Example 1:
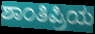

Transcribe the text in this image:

ಶಾಂತಿಪ್ರಿಯ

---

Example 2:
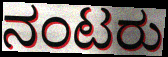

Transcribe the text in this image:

ನಂಟರು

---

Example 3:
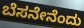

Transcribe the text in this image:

ಬೆಸನೇನೆಂದು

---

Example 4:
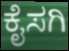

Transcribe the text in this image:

ಕೈಸಗಿ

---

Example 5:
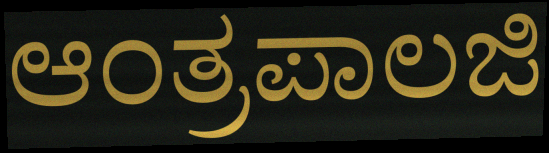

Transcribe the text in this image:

ಆಂತ್ರಪಾಲಜಿ